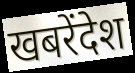
खबरेंदेश